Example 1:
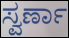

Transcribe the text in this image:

ಸ್ವರ್ಣಾ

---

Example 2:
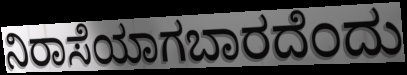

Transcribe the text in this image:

ನಿರಾಸೆಯಾಗಬಾರದೆಂದು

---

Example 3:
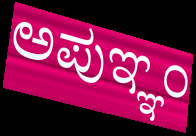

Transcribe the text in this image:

ಅಪುಞ್ಞಂ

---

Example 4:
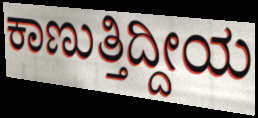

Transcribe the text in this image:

ಕಾಣುತ್ತಿದ್ದೀಯ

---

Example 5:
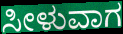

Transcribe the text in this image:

ಸೀಳುವಾಗ